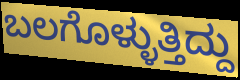
ಬಲಗೊಳ್ಳುತ್ತಿದ್ದು